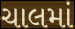
ચાલમાં